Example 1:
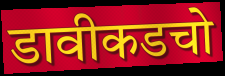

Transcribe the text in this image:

डावीकडचो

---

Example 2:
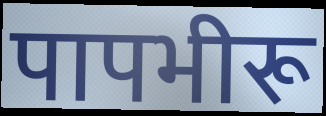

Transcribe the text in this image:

पापभीरू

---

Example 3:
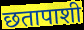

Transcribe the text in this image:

छतापाशी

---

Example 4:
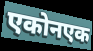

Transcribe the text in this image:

एकोनएक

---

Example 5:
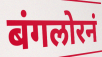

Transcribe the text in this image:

बंगलोरनं